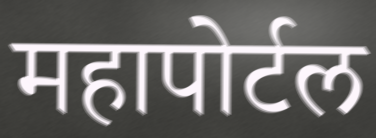
महापोर्टल